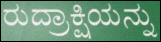
ರುದ್ರಾಕ್ಷಿಯನ್ನು